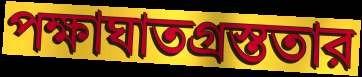
পক্ষাঘাতগ্রস্ততার